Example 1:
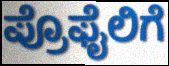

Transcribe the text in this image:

ಪ್ರೊಫೈಲಿಗೆ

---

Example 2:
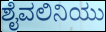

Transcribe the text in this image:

ಶೈವಲಿನಿಯು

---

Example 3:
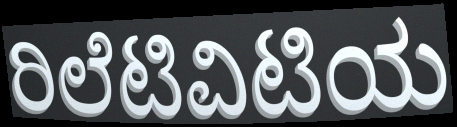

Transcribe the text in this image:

ರಿಲೆಟಿವಿಟಿಯ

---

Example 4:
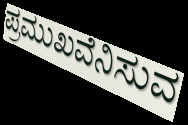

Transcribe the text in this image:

ಪ್ರಮುಖವೆನಿಸುವ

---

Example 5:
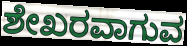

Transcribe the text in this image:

ಶೇಖರವಾಗುವ